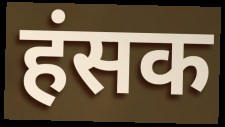
हंसक